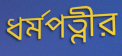
ধর্মপত্নীর